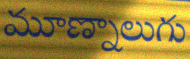
మూణ్నాలుగు